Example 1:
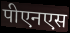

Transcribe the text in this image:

पीएनएस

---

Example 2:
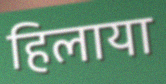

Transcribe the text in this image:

हिलाया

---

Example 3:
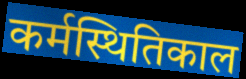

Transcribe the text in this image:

कर्मस्थितिकाल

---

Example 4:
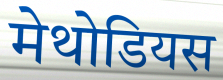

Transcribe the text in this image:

मेथोडियस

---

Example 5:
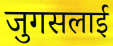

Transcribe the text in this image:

जुगसलाई